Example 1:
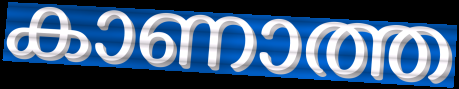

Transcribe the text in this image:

കാണാത്ത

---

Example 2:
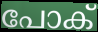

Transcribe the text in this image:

പോക്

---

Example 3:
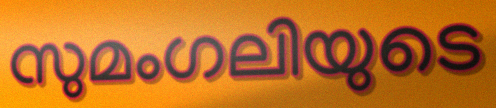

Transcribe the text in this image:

സുമംഗലിയുടെ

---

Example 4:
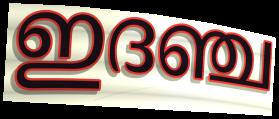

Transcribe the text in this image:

ഇദഞ്ച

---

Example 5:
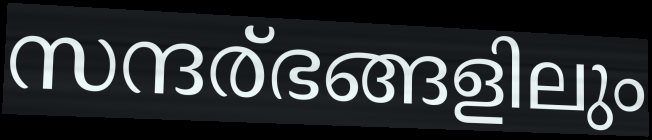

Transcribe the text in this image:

സന്ദര്ഭങ്ങളിലും